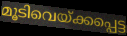
മൂടിവെയ്ക്കപ്പെട്ട